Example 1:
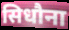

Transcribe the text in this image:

सिधौना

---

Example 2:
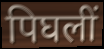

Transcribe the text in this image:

पिघलीं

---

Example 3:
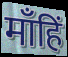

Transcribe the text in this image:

माँहिं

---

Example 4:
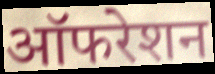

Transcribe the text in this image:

ऑफरेशन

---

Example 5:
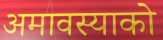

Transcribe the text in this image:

अमावस्याको